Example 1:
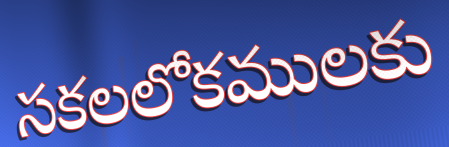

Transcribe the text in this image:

సకలలోకములకు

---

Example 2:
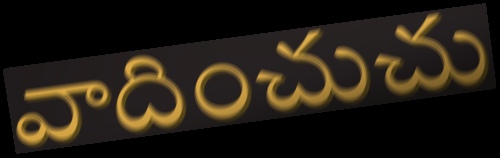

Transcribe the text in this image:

వాదించుచు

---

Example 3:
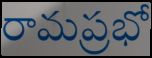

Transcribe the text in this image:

రామప్రభో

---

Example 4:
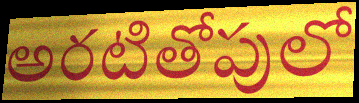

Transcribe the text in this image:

అరటితోపులో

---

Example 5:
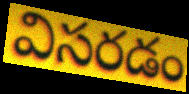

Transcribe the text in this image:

విసరడం